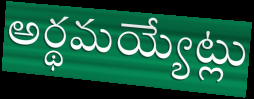
అర్థమయ్యేట్లు